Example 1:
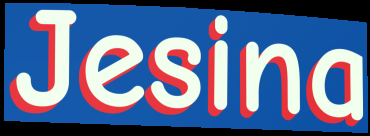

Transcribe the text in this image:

Jesina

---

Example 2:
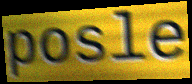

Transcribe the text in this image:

posle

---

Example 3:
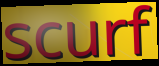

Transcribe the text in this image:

scurf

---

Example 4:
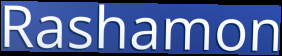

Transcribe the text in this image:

Rashamon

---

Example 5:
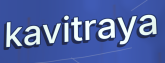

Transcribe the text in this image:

kavitraya